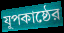
যূপকাষ্ঠের